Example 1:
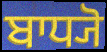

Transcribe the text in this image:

ਬਾਧ੍ਯੋ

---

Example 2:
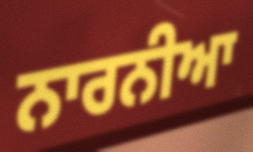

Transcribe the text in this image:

ਨਾਰਨੀਆ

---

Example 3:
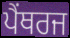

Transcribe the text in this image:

ਪੈਂਥਰਜ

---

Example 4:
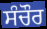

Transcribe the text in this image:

ਸੰਚੌਰ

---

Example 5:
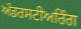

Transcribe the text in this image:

ਅੰਡਰਸਟੀਅਰਿੰਗ